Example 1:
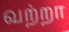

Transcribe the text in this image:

வற்றா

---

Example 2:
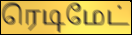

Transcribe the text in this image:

ரெடிமேட்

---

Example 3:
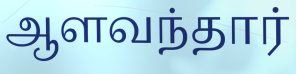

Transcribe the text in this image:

ஆளவந்தார்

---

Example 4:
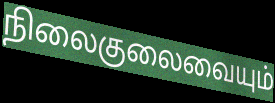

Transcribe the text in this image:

நிலைகுலைவையும்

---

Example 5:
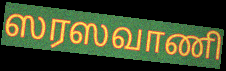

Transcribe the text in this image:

ஸரஸவாணி